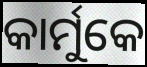
କାର୍ମୁକେ